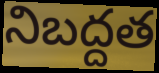
నిబద్దత